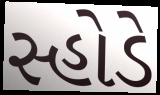
સ્હોડે